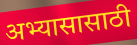
अभ्यासासाठी